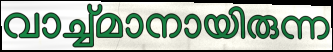
വാച്ച്മാനായിരുന്ന